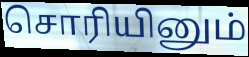
சொரியினும்